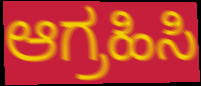
ಆಗ್ರಹಿಸಿ